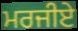
ਮਰਜੀਏ